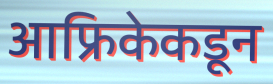
आफ्रिकेकडून